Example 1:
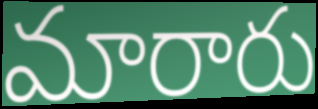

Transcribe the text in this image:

మారారు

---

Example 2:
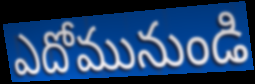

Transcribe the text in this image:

ఎదోమునుండి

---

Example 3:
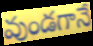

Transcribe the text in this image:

వుండగానే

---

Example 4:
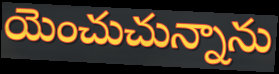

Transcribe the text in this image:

యెంచుచున్నాను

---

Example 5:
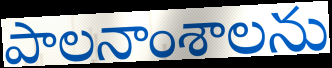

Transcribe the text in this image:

పాలనాంశాలను